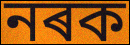
নৰক